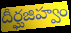
దీర్ఘజిహ్వం